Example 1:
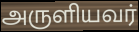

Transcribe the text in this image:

அருளியவர்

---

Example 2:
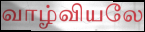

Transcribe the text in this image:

வாழ்வியலே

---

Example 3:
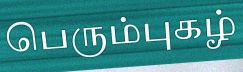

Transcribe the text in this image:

பெரும்புகழ்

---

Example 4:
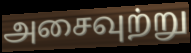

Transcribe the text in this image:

அசைவுற்று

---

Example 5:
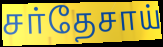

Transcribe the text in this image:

சர்தேசாய்